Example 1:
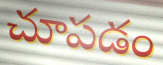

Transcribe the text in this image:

చూపడం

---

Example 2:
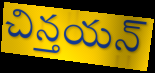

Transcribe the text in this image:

చిన్తయన్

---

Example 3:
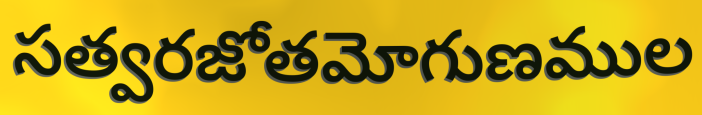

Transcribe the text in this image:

సత్వరజోతమోగుణముల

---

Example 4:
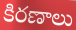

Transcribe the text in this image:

కిరణాలు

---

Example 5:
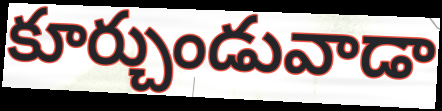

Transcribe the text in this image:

కూర్చుండువాడా